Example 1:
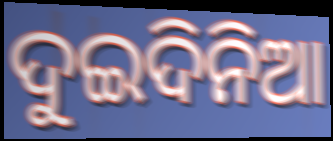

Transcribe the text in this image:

ଦୁଇଦିନିଆ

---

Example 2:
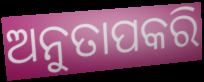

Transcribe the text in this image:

ଅନୁତାପକରି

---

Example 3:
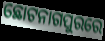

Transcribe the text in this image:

ଛୋଟନାଗପୁରରେ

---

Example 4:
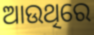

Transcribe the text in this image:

ଆଉଥିରେ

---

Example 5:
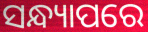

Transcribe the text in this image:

ସନ୍ଧ୍ୟାପରେ